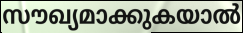
സൗഖ്യമാക്കുകയാൽ